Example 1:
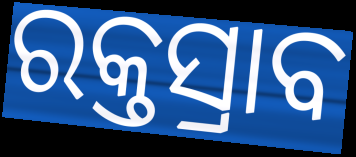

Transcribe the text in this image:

ରକ୍ତସ୍ରାବ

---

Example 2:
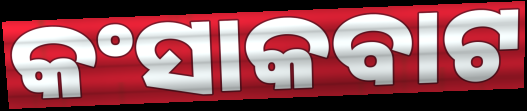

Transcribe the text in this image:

କଂସାକବାଟ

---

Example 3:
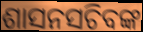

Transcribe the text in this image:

ଶାସନସଚିବଙ୍କ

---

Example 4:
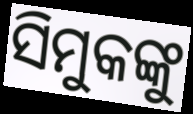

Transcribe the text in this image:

ସିମୁକଙ୍କୁ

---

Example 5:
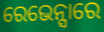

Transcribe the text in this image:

ରେଭେନ୍ସାରେ